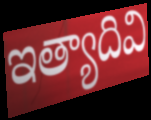
ఇత్యాదివి